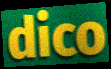
dico